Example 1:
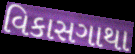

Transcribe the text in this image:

વિકાસગાથા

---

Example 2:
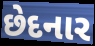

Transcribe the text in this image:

છેદનાર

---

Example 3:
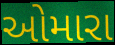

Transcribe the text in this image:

ઓમારા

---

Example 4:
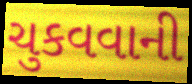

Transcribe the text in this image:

ચુકવવાની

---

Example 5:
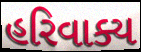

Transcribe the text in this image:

હરિવાક્ય